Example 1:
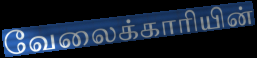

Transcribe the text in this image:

வேலைக்காரியின்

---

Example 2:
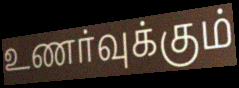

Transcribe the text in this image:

உணர்வுக்கும்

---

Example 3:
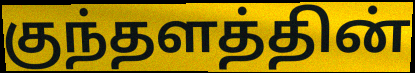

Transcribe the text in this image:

குந்தளத்தின்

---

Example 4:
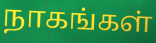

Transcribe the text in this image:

நாகங்கள்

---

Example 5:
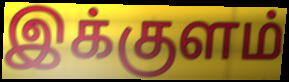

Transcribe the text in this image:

இக்குளம்